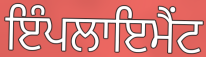
ਇੰਪਲਾਇਮੈਂਟ